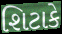
શિટાકે